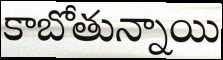
కాబోతున్నాయి